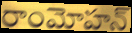
రాంమోహన్